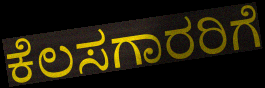
ಕೆಲಸಗಾರರಿಗೆ